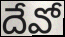
దేవో